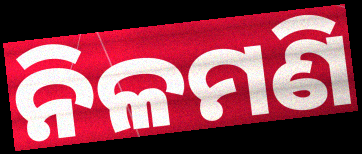
ନିଳମଣି